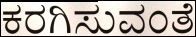
ಕರಗಿಸುವಂತೆ